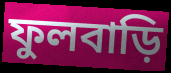
ফুলবাড়ি